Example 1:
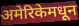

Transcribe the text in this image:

अमेरिकेमधून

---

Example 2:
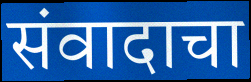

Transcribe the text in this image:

संवादाचा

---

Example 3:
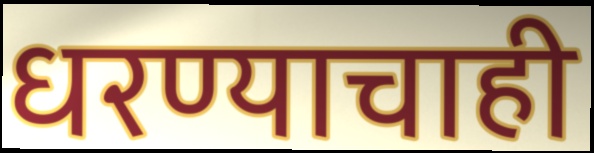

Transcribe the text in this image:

धरण्याचाही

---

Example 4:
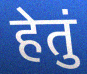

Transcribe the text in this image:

हेतुं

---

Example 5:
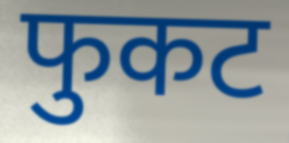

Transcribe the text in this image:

फुकट